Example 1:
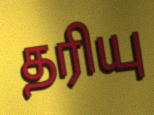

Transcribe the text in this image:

தரியு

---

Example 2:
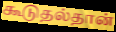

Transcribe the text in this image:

கூடுதல்தான்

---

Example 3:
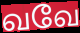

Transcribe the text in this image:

வவே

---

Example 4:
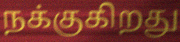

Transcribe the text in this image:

நக்குகிறது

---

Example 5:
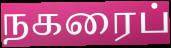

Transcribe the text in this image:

நகரைப்